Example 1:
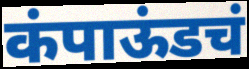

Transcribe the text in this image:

कंपाऊंडचं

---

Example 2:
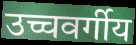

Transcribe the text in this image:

उच्चवर्गीय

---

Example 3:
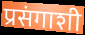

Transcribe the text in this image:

प्रसंगाशी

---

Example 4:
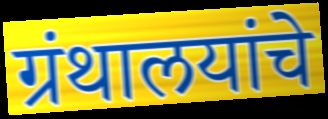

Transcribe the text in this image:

ग्रंथालयांचे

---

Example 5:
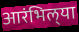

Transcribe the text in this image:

आरंभिल्या